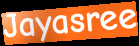
Jayasree